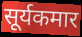
सूर्यकमार